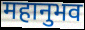
महानुभव